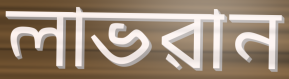
লাভৱান